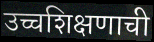
उच्चशिक्षणाची